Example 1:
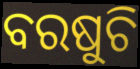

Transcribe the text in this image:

ବରଷୁଚି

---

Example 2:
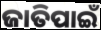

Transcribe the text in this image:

ଜାତିପାଇଁ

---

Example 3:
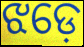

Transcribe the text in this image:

ଝଡ଼େ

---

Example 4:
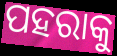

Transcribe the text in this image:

ପହରାକୁ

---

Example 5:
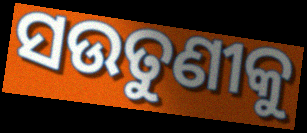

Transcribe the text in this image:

ସଉତୁଣୀକୁ